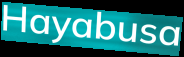
Hayabusa